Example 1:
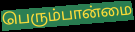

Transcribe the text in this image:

பெரும்பான்மை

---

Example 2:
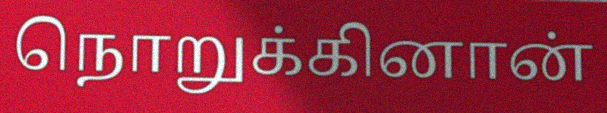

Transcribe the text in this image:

நொறுக்கினான்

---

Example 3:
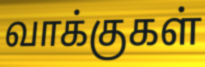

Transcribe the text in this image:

வாக்குகள்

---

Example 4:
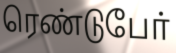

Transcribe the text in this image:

ரெண்டுபேர்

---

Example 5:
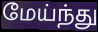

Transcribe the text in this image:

மேய்ந்து